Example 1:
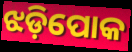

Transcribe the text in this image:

ଝଡ଼ିପୋକ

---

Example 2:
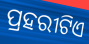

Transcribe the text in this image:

ପ୍ରହରୀଟିଏ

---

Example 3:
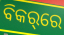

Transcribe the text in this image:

ବିକର୍‌ରେ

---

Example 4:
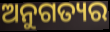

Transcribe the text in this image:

ଅନୁଗତ୍ୟର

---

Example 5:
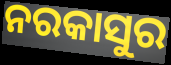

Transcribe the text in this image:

ନରକାସୁର